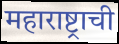
महाराष्ट्राची